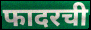
फादरची